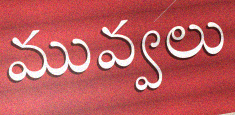
మువ్వలు